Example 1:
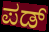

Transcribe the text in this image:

ಪಡ್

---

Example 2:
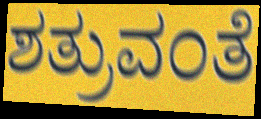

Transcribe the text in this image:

ಶತ್ರುವಂತೆ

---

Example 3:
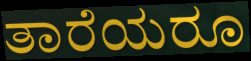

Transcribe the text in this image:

ತಾರೆಯರೂ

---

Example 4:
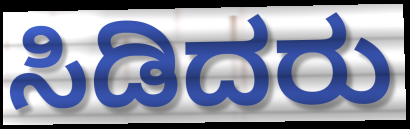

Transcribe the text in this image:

ಸಿಡಿದರು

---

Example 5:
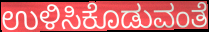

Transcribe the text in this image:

ಉಳಿಸಿಕೊಡುವಂತೆ